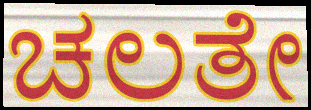
ಚಲತೇ